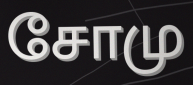
சோமு